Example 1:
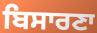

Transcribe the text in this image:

ਬਿਸਾਰਣਾ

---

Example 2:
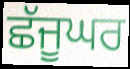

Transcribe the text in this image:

ਛੱਜੂਘਰ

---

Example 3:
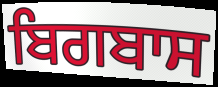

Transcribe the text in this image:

ਬਿਗਬਾਸ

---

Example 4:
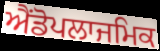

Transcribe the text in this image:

ਐਂਡੋਪਲਾਜਮਿਕ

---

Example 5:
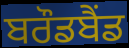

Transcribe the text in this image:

ਬਰੌਡਬੈਂਡ